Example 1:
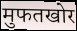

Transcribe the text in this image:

मुफतखोर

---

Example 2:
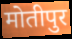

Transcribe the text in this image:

मोतीपुर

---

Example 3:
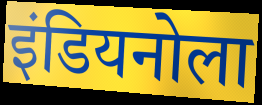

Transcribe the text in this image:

इंडियनोला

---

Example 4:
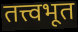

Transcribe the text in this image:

तत्त्वभूत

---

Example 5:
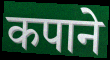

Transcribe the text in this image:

कपाने